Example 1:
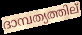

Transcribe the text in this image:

ദാമ്പത്യത്തില്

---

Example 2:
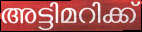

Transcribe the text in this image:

അട്ടിമറിക്ക്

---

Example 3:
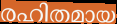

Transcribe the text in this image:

രഹിതമായ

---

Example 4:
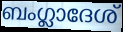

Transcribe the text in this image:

ബംഗ്ലാദേശ്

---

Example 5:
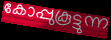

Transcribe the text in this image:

കോപ്പുകൂട്ടുന്ന